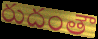
రుదంతౌ